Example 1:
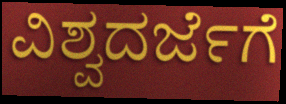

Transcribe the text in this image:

ವಿಶ್ವದರ್ಜೆಗೆ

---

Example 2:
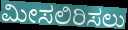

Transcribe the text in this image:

ಮೀಸಲಿರಿಸಲು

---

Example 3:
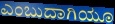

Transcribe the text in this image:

ಎಂಬುದಾಗಿಯೂ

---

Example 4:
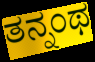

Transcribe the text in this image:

ತನ್ನಂಥ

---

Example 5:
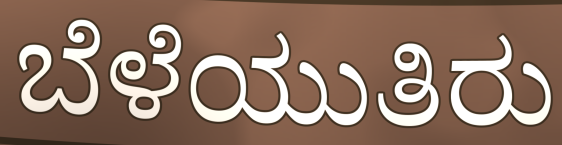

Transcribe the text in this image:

ಬೆಳೆಯುತಿರು